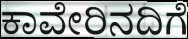
ಕಾವೇರಿನದಿಗೆ